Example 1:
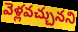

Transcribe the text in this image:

వెళ్లవచ్చునని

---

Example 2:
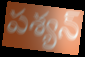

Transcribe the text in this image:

పశ్యన్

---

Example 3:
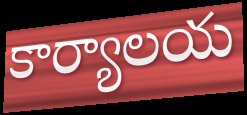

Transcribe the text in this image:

కార్యాలయ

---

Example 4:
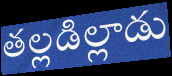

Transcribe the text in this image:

తల్లడిల్లాడు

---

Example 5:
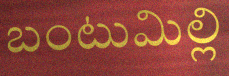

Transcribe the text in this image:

బంటుమిల్లి